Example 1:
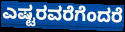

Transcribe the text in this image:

ಎಷ್ಟರವರೆಗೆಂದರೆ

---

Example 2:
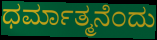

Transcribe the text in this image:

ಧರ್ಮಾತ್ಮನೆಂದು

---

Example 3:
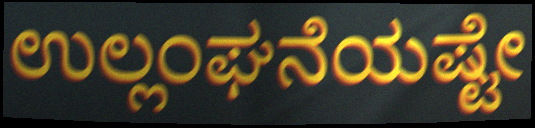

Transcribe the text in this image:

ಉಲ್ಲಂಘನೆಯಷ್ಟೇ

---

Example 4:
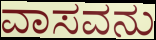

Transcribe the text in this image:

ವಾಸವನು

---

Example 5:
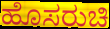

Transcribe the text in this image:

ಹೊಸರುಚಿ